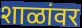
शाळांवर